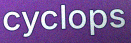
cyclops